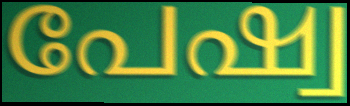
പേഷ്വ